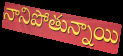
నానిపోతున్నాయి